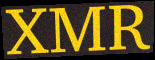
XMR